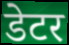
डेटर